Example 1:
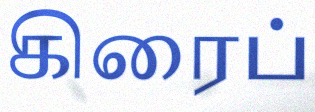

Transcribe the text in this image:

கிரைப்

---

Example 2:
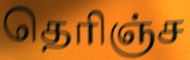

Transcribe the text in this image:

தெரிஞ்ச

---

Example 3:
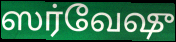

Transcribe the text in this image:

ஸர்வேஷு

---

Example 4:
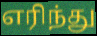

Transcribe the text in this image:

எரிந்து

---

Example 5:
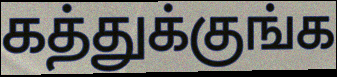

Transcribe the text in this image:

கத்துக்குங்க